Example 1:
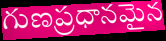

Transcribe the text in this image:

గుణప్రధానమైన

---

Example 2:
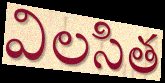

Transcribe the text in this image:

విలసిత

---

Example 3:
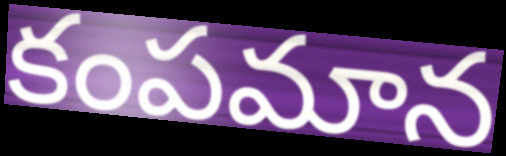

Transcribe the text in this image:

కంపమాన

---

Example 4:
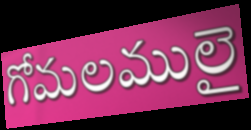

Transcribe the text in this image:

గోమలములై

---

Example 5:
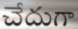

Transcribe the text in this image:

చేదుగా